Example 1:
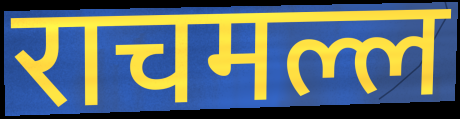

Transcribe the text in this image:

राचमल्ल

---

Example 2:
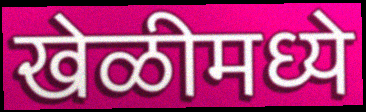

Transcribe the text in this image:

खेळीमध्ये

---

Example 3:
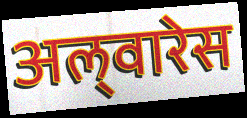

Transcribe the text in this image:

अल्वारेस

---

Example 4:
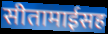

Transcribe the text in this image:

सीतामाईसह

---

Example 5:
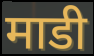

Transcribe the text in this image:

माडी